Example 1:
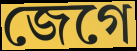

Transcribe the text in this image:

জেগে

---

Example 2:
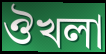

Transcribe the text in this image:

ঔখলা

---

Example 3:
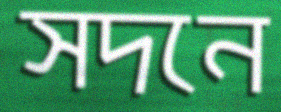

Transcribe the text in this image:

সদনে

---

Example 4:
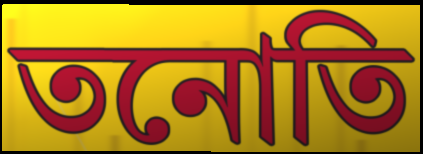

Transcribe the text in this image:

তনোতি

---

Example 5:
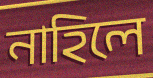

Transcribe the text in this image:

নাহিলে